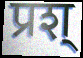
प्रश्